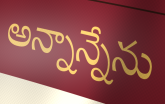
అన్నాన్నేను